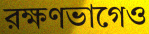
রক্ষণভাগেও